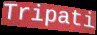
Tripati